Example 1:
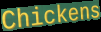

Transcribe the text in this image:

Chickens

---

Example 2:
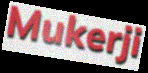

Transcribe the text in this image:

Mukerji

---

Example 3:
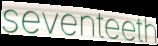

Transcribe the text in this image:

seventeeth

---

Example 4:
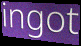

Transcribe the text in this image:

ingot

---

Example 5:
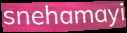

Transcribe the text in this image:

snehamayi